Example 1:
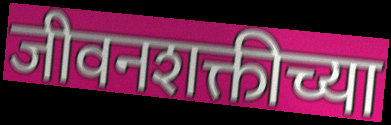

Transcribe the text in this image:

जीवनशक्तीच्या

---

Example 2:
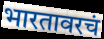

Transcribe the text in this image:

भारतावरचं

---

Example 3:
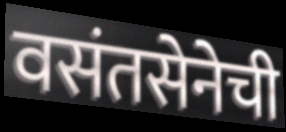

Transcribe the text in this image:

वसंतसेनेची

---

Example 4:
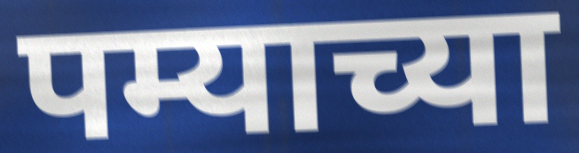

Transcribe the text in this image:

पम्याच्या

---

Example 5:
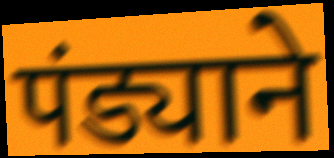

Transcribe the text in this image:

पंड्याने